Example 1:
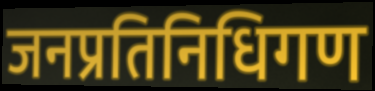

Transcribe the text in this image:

जनप्रतिनिधिगण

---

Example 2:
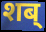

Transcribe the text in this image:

शब्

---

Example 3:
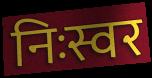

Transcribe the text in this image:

निःस्वर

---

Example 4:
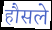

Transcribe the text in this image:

हौसले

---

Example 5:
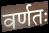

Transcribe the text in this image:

वर्णतः